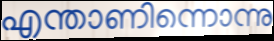
എന്താണിന്നൊന്നു